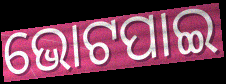
ଭୋଟପାଇ